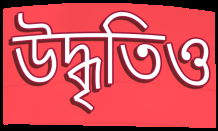
উদ্ধৃতিও